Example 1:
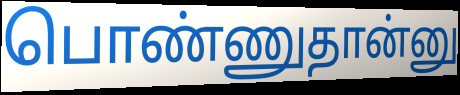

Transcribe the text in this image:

பொண்ணுதான்னு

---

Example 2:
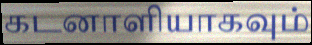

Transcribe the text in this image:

கடனாளியாகவும்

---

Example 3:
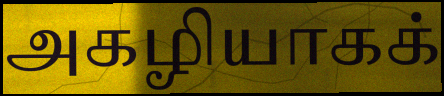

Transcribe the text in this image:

அகழியாகக்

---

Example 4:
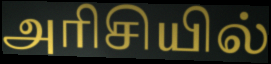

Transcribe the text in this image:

அரிசியில்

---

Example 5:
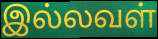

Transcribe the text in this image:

இல்லவள்